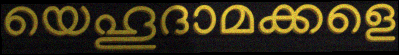
യെഹൂദാമക്കളെ